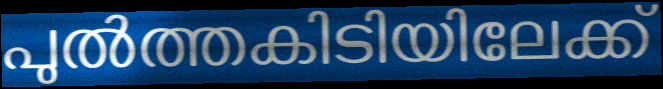
പുൽത്തകിടിയിലേക്ക്